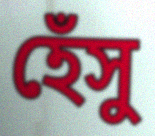
হেঁসু